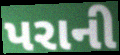
પરાની